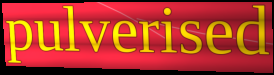
pulverised